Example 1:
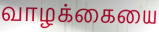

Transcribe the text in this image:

வாழக்கையை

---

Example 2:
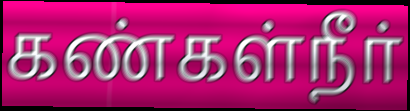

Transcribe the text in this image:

கண்கள்நீர்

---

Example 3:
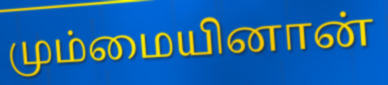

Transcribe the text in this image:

மும்மையினான்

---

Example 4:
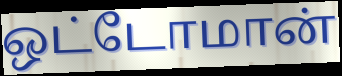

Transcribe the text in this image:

ஒட்டோமான்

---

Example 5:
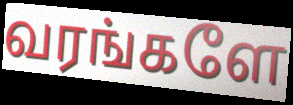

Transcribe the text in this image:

வரங்களே